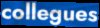
collegues